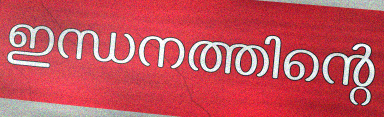
ഇന്ധനത്തിന്റെ